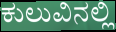
ಕುಲುವಿನಲ್ಲಿ